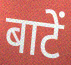
बाटें